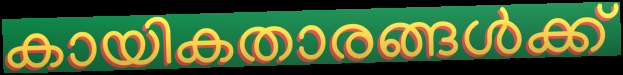
കായികതാരങ്ങൾക്ക്